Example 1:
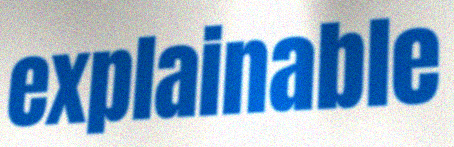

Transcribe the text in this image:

explainable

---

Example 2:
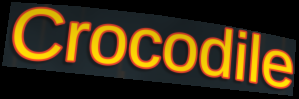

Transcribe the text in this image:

Crocodile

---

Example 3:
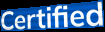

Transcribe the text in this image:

Certified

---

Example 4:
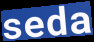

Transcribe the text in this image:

seda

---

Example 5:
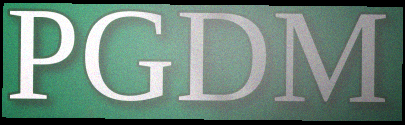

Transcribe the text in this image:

PGDM